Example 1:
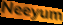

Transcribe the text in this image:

Neeyum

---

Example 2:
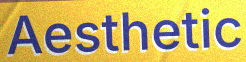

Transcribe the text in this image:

Aesthetic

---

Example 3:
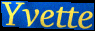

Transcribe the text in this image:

Yvette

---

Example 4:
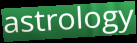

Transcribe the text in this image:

astrology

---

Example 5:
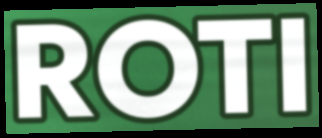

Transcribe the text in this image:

ROTI